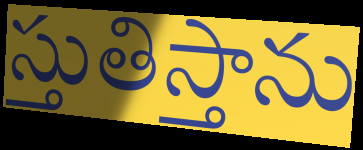
స్తుతిస్తాను